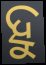
ହୁ